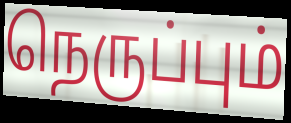
நெருப்பும்